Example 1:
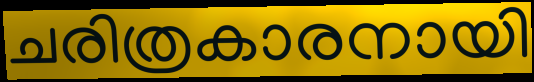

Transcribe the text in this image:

ചരിത്രകാരനായി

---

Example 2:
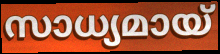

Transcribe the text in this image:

സാധ്യമായ്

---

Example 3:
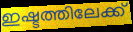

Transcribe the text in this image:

ഇഷ്ടത്തിലേക്ക്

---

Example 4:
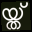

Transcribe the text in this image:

യ്ത്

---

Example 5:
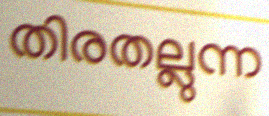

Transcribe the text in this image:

തിരതല്ലുന്ന